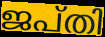
ജപ്‌തി